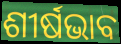
ଶୀର୍ଷଭାବ